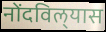
नोंदविल्यास